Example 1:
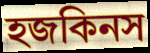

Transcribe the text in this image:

হজকিনস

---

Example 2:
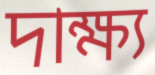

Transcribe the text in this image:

দাক্ষ্য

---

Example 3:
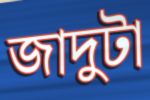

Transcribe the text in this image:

জাদুটা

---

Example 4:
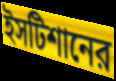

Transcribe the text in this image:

ইসটিশানের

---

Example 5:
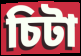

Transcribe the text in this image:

চিটা